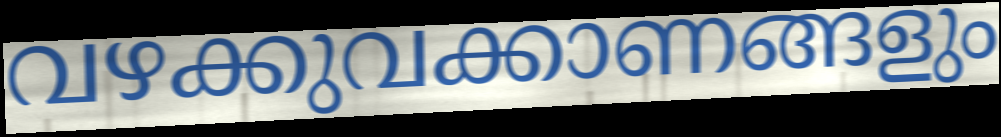
വഴക്കുവക്കാണങ്ങളും